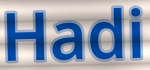
Hadi